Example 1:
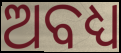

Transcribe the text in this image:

ଅବଧ୍ୟ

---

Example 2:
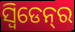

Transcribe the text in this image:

ସ୍ୱିଡେନ୍‍ର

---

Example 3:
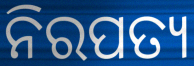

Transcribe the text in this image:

ନିରପତ୍ୟ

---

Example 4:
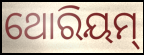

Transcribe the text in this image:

ଥୋରିୟମ୍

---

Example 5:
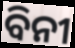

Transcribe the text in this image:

ବିନୀ